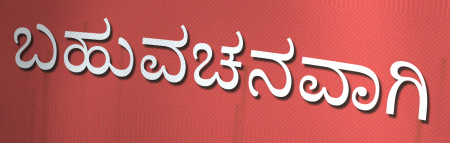
ಬಹುವಚನವಾಗಿ